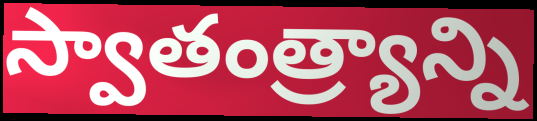
స్వాతంత్ర్యాన్ని